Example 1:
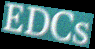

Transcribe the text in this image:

EDCs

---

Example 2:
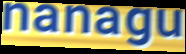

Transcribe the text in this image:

nanagu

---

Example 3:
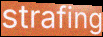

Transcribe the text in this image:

strafing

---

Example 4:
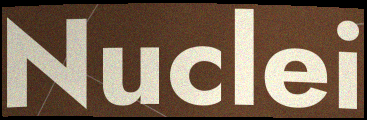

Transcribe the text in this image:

Nuclei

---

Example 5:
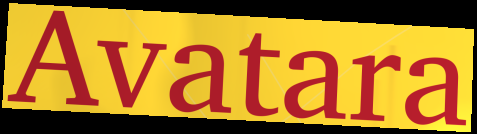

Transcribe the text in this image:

Avatara